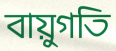
বায়ুগতি